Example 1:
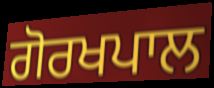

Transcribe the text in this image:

ਗੋਰਖਪਾਲ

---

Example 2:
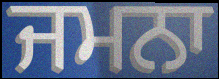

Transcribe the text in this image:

ਜਮਨਾ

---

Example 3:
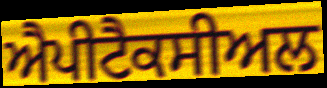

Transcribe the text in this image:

ਐਪੀਟੈਕਸੀਅਲ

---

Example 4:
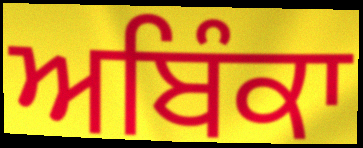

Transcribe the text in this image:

ਅਬਿੰਕਾ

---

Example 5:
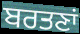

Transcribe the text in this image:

ਬਰਤਣਾਂ